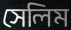
সেলিম